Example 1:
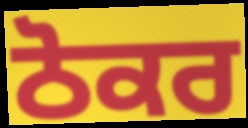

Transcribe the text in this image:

ਠੋਕਰ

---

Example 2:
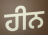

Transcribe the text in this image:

ਹੀਨ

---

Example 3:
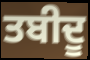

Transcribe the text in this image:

ਤਬੀਦੂ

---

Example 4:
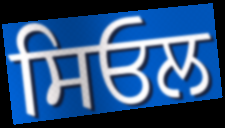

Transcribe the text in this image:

ਸਿਓਲ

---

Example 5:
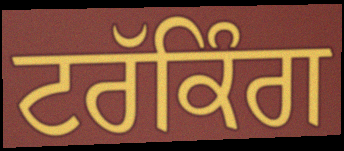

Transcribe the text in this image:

ਟਰੱਕਿੰਗ